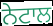
ਨੇਟਾਲ